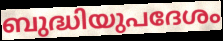
ബുദ്ധിയുപദേശം